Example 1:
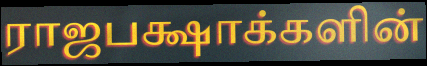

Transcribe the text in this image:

ராஜபக்ஷாக்களின்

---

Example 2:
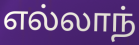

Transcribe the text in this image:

எல்லாந்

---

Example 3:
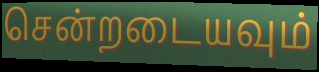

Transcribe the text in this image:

சென்றடையவும்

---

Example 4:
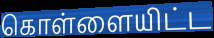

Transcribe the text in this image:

கொள்ளையிட்ட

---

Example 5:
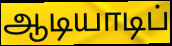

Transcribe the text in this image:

ஆடியாடிப்